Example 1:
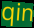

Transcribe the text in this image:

qin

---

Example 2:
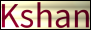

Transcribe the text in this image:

Kshan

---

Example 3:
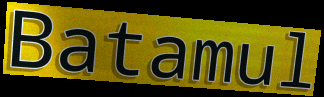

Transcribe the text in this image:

Batamul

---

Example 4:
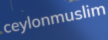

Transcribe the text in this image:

ceylonmuslim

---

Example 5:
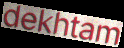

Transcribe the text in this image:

dekhtam